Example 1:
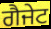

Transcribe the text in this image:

ਗੈਜੇਟ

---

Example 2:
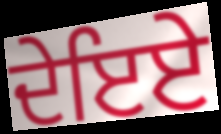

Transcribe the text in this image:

ਦੇਇਏ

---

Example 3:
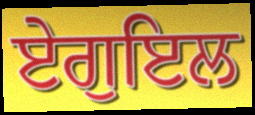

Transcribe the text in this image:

ਏਗੁਇਲ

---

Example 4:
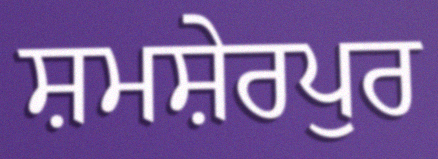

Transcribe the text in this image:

ਸ਼ਮਸ਼ੇਰਪੁਰ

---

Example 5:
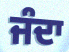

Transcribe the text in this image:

ਜੰਦਾ